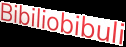
Bibiliobibuli